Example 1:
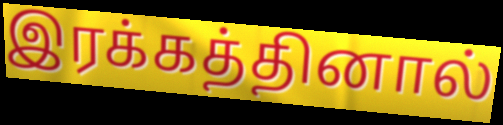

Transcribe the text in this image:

இரக்கத்தினால்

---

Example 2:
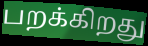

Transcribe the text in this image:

பறக்கிறது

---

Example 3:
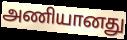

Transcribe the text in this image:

அணியானது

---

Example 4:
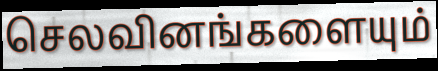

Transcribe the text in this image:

செலவினங்களையும்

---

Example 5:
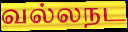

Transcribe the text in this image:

வல்லநட